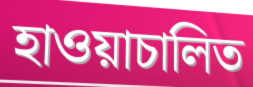
হাওয়াচালিত